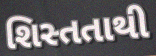
શિસ્તતાથી